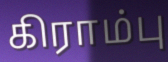
கிராம்பு